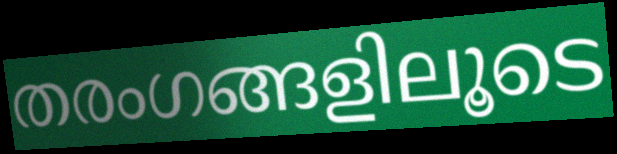
തരംഗങ്ങളിലൂടെ